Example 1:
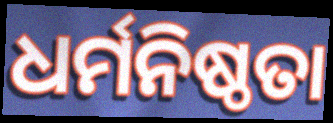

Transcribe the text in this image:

ଧର୍ମନିଷ୍ଠତା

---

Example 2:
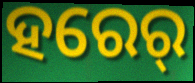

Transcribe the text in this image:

ହରେର୍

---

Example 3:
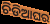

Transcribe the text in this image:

ଚିଡିଆଘର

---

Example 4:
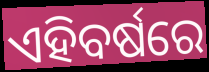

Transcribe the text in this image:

ଏହିବର୍ଷରେ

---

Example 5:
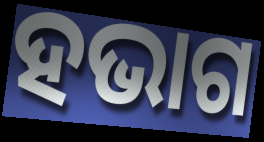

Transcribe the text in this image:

ହଭାଗ